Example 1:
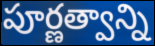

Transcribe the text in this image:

పూర్ణత్వాన్ని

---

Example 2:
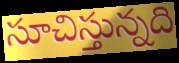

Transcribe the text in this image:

సూచిస్తున్నది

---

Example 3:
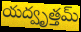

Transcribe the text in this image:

యద్వృత్తమ్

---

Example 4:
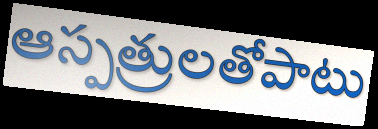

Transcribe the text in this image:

ఆస్పత్రులతోపాటు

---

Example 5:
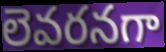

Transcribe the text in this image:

లెవరనగా